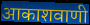
आकाशवाणी